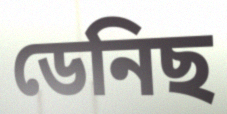
ডেনিছ